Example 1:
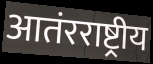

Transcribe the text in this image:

आतंरराष्ट्रीय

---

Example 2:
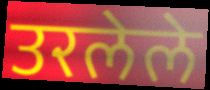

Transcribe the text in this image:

उरलेले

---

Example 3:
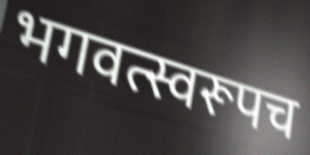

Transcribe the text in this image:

भगवत्स्वरूपच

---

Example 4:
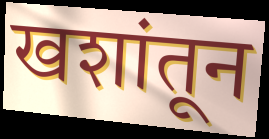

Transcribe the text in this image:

खशांतून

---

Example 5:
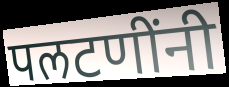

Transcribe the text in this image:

पलटणींनी